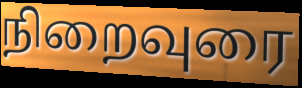
நிறைவுரை